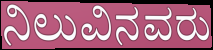
ನಿಲುವಿನವರು